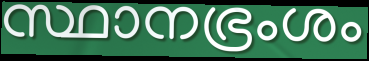
സ്ഥാനഭ്രംശം